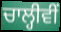
ਚਾਲ੍ਹੀਵੀਂ